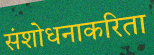
संशोधनाकरिता